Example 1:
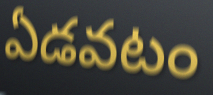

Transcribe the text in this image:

ఏడవటం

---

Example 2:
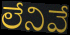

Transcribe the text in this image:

లేనివే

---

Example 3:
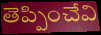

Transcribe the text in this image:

తెప్పించేవి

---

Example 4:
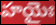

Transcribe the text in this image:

హయైః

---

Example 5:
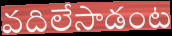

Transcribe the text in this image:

వదిలేసాడంట